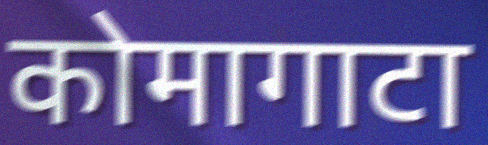
कोमागाटा